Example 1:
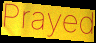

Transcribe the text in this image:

Prayed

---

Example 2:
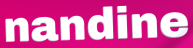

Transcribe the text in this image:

nandine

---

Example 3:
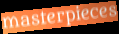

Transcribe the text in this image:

masterpieces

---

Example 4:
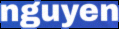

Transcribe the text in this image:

nguyen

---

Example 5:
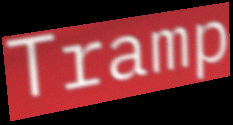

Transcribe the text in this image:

Tramp